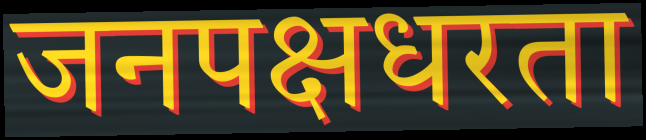
जनपक्षधरता